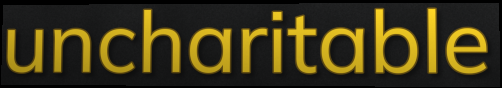
uncharitable